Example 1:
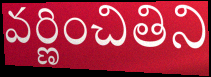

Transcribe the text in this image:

వర్ణించితిని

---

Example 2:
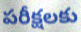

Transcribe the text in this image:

పరీక్షలకు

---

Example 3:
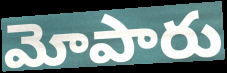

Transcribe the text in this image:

మోపారు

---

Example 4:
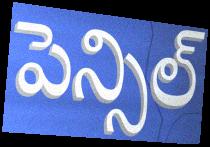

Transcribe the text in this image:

పెన్సిల్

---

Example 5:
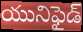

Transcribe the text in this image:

యునిఫైడ్